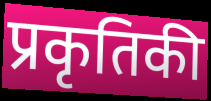
प्रकृतिकी